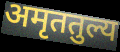
अमृततुल्य